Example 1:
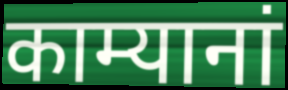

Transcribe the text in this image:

काम्यानां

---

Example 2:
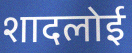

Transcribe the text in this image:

शादलोई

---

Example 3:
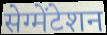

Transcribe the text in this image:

सेग्मेंटेशन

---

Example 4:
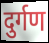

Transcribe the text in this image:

दुर्गण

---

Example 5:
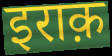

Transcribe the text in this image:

इराक़